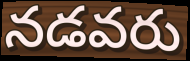
నడవరు